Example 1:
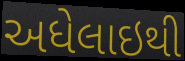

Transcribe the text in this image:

અધેલાઇથી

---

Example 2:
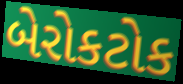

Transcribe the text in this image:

બેરોકટોક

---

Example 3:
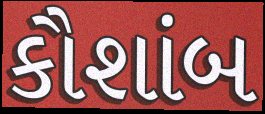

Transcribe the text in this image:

કૌશાંબ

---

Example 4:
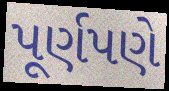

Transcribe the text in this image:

પૂર્ણપણે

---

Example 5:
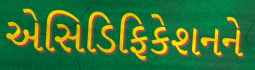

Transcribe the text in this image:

એસિડિફિકેશનને